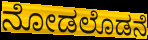
ನೋಡಲೊಡನೆ